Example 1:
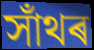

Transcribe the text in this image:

সাঁথৰ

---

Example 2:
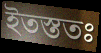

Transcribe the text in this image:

ইতস্ততঃ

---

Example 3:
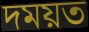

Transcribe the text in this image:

দময়ত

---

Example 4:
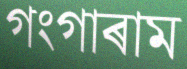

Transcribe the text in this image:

গংগাৰাম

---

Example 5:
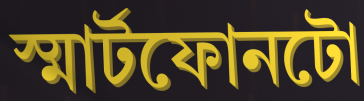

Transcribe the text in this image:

স্মাৰ্টফোনটো